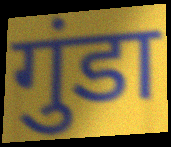
गुंडा